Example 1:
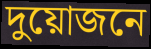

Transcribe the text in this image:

দুয়োজনে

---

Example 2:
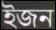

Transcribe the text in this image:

ইজন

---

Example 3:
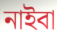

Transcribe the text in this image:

নাইবা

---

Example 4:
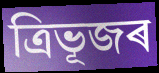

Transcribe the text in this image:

ত্ৰিভূজৰ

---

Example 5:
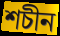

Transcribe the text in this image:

শচীন